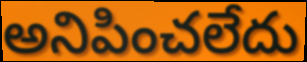
అనిపించలేదు